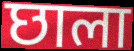
छाला